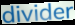
divider